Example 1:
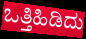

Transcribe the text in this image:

ಒತ್ತಿಹಿಡಿದು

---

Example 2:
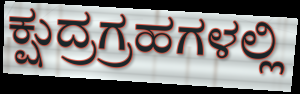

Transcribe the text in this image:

ಕ್ಷುದ್ರಗ್ರಹಗಳಲ್ಲಿ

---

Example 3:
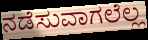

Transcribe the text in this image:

ನಡೆಸುವಾಗಲೆಲ್ಲ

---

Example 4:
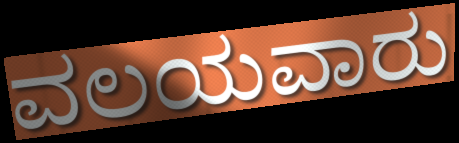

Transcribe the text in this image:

ವಲಯವಾರು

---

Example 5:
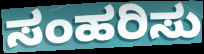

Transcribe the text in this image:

ಸಂಹರಿಸು